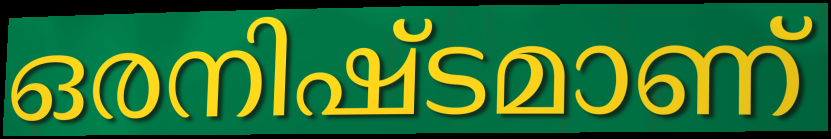
ഒരനിഷ്ടമാണ്